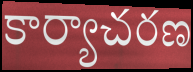
కార్యాచరణ